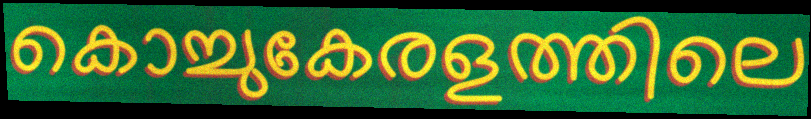
കൊച്ചുകേരളത്തിലെ